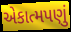
એકાત્મપણું